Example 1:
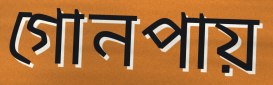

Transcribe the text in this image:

গোনপায়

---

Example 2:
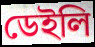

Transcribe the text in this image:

ডেইলি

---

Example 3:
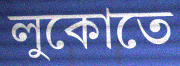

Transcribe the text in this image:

লুকোতে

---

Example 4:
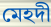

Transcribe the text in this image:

মেহদী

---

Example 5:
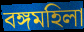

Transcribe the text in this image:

বঙ্গমহিলা